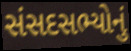
સંસદસભ્યોનું